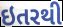
ઇતરથી